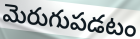
మెరుగుపడటం